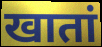
खातां